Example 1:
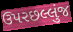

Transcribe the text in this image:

ઉપરછલ્લુંજ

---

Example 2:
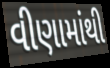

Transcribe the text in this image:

વીણામાંથી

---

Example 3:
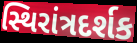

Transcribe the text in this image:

સ્થિરાંત્રદર્શક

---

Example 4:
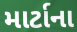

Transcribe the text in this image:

માર્ટાના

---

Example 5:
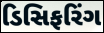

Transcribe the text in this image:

ડિસિફરિંગ